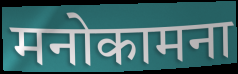
मनोकामना